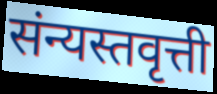
संन्यस्तवृत्ती